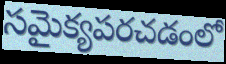
సమైక్యపరచడంలో